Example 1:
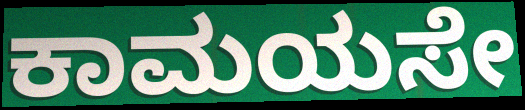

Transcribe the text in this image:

ಕಾಮಯಸೇ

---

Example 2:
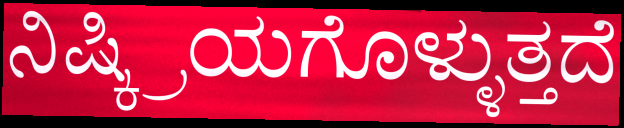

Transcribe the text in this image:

ನಿಷ್ಕ್ರಿಯಗೊಳ್ಳುತ್ತದೆ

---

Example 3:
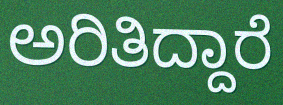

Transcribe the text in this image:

ಅರಿತಿದ್ದಾರೆ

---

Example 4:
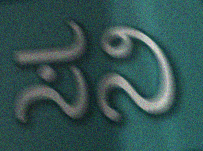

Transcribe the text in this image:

ಸನಿ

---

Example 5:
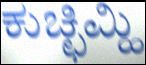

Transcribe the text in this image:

ಕುಚ್ಛಿಮ್ಹಿ